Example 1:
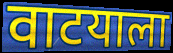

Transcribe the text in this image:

वाटयाला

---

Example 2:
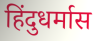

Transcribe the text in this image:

हिंदुधर्मास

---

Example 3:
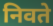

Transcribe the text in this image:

निवते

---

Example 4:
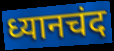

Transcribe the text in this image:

ध्यानचंद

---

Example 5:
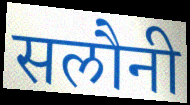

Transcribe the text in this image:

सलौनी